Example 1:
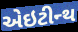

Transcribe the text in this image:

એઇટીન્થ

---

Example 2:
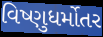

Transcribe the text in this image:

વિષ્ણુધર્મોતર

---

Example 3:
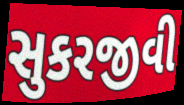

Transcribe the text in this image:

સુકરજીવી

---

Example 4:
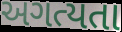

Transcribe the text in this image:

અગત્યતા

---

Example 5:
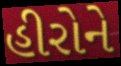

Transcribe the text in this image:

હીરોને